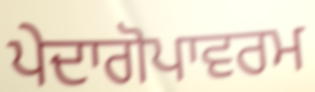
ਪੇਦਾਗੋਪਾਵਰਮ